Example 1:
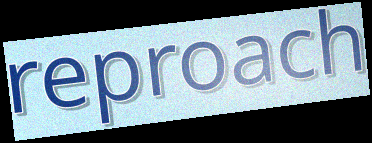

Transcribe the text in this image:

reproach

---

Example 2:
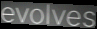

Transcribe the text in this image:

evolves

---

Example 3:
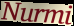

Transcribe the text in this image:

Nurmi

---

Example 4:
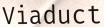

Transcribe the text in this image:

Viaduct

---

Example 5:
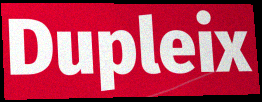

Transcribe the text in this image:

Dupleix